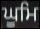
ਘੂਮਿ